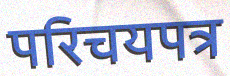
परिचयपत्र